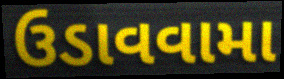
ઉડાવવામા